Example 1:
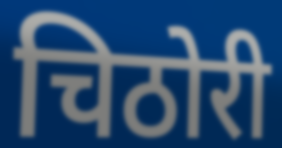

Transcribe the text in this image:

चिठोरी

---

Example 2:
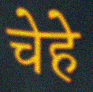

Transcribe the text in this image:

चेहे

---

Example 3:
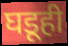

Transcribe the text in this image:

घडूही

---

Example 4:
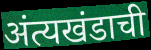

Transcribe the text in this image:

अंत्यखंडाची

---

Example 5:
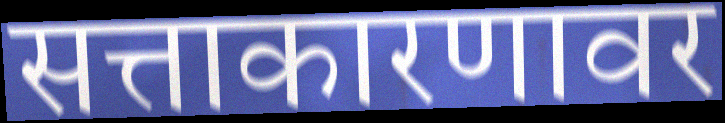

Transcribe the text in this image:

सत्ताकारणावर